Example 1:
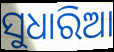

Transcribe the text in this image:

ସୁଧାରିଆ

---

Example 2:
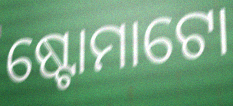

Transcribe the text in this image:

ଷ୍ଟୋମାଟୋ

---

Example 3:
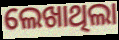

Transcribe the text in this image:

ଲେଖାଥିଲା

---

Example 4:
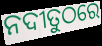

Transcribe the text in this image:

ନଦୀତୁଠରେ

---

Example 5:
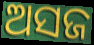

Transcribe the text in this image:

ଅସଜ